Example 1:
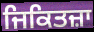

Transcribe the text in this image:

ਜਿਕਿਤਜ਼ਾ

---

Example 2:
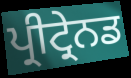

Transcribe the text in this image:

ਪ੍ਰੀਟ੍ਰੇਨਡ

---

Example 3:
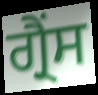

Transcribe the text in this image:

ਗ੍ਰੈਂਸ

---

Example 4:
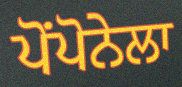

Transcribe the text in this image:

ਪੋਂਪੋਨੇਲਾ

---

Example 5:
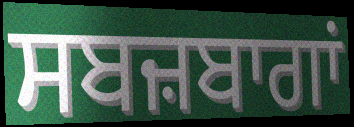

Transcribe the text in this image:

ਸਬਜ਼ਬਾਗਾਂ